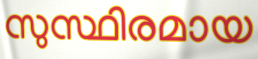
സുസ്ഥിരമായ